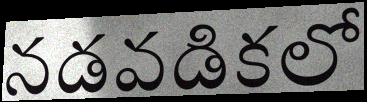
నడవడికలో